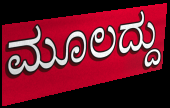
ಮೂಲದ್ದು